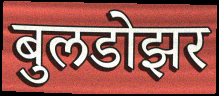
बुलडोझर